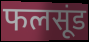
फलसूंड